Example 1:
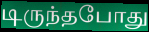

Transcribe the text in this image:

டிருந்தபோது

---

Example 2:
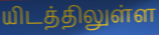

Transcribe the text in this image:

யிடத்திலுள்ள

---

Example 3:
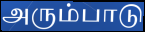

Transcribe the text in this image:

அரும்பாடு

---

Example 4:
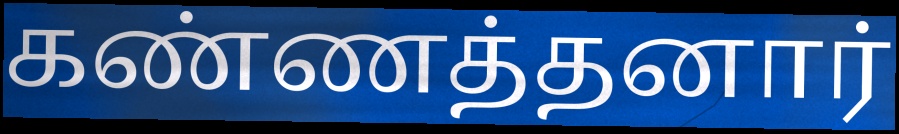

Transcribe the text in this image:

கண்ணத்தனார்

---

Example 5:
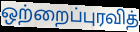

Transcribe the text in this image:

ஒற்றைப்புரவித்